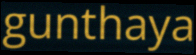
gunthaya